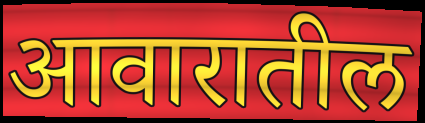
आवारातील